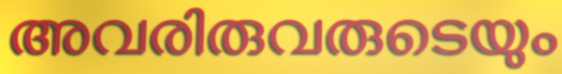
അവരിരുവരുടെയും